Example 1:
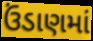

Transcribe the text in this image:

ઉંડાણમાં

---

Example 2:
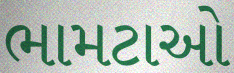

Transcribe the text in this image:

ભામટાઓ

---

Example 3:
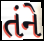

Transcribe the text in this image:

તંને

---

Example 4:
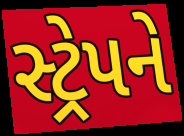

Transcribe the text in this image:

સ્ટ્રેપને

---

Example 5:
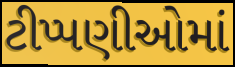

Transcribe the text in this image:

ટીપ્પણીઓમાં